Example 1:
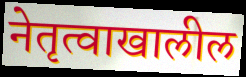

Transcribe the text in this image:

नेतृत्वाखालील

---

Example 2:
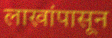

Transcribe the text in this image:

लाखांपासून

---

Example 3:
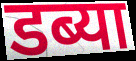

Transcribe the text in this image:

डब्या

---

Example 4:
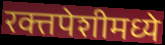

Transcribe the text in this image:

रक्तपेशीमध्ये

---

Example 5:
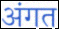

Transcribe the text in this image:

अंगत